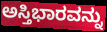
ಅಸ್ತಿಭಾರವನ್ನು